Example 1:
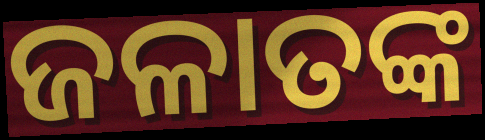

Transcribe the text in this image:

ଜଳାତଙ୍କ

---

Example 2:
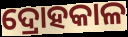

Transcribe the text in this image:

ଦ୍ରୋହକାଳ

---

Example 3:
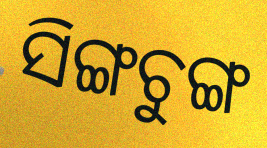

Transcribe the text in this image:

ସିଙ୍ଗଚୁଙ୍ଗ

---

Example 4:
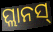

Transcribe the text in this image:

ପ୍ଲାନସ୍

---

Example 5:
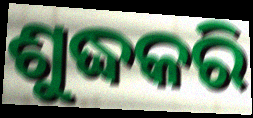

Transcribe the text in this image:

ଶୁଦ୍ଧକରି